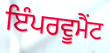
ਇੰਪਰਵੂਮੈਂਟ